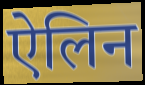
ऐलिन